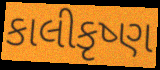
કાલીકૃષ્ણ